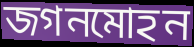
জগনমোহন